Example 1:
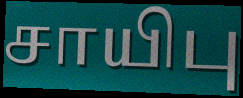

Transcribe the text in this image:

சாயிபு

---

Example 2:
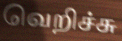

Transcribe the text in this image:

வெறிச்சு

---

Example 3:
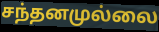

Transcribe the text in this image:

சந்தனமுல்லை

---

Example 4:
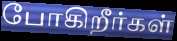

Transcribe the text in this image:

போகிறீர்கள்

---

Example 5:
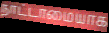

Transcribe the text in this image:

நாட்டாமையாக